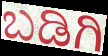
ಬಡಿಗಿ